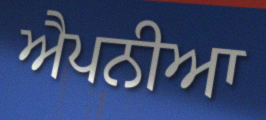
ਐਪਨੀਆ